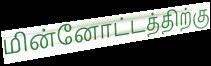
மின்னோட்டத்திற்கு